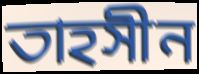
তাহসীন